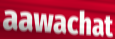
aawachat